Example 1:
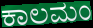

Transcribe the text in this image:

ಕಾಲಮಂ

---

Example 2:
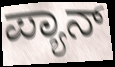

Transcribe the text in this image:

ಪ್ಯಾನ್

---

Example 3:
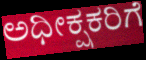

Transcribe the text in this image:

ಅಧೀಕ್ಷಕರಿಗೆ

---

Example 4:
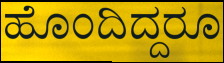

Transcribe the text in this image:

ಹೊಂದಿದ್ದರೂ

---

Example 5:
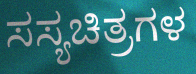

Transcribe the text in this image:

ಸಸ್ಯಚಿತ್ರಗಳ